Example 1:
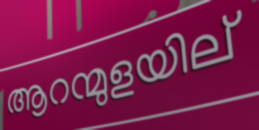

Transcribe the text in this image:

ആറന്മുളയില്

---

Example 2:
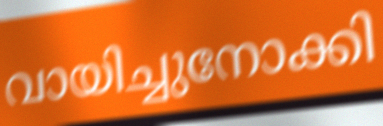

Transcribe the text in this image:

വായിച്ചുനോക്കി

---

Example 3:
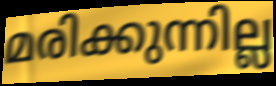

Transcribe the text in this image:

മരിക്കുന്നില്ല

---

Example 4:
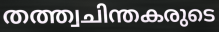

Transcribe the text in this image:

തത്ത്വചിന്തകരുടെ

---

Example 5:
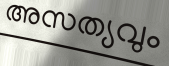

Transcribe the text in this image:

അസത്യവും